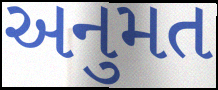
અનુમત